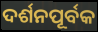
ଦର୍ଶନପୂର୍ବକ